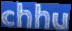
chhu